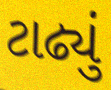
ટાઢ્યું